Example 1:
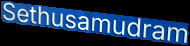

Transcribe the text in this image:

Sethusamudram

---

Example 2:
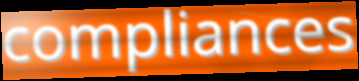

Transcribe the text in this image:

compliances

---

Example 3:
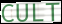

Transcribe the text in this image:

CULT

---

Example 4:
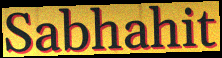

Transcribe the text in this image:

Sabhahit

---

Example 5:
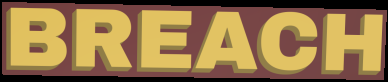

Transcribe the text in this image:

BREACH